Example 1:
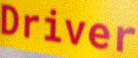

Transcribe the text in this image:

Driver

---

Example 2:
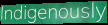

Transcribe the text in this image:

Indigenously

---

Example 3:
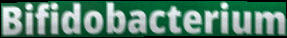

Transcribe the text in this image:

Bifidobacterium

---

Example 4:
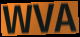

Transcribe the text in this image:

WVA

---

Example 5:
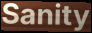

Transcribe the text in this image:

Sanity